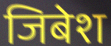
जिबेश